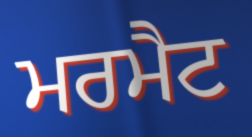
ਮਰਮੈਟ